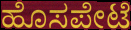
ಹೊಸಪೇಟೆ